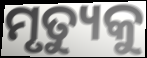
ମୃତ୍ୟୁକୁ